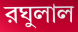
রঘুলাল